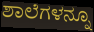
ಶಾಲೆಗಳನ್ನೂ